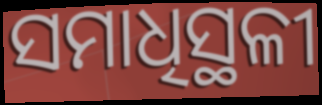
ସମାଧିସ୍ଥଳୀ